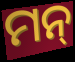
ମନ୍